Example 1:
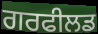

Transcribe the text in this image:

ਗਰਫੀਲਡ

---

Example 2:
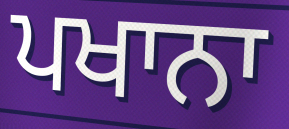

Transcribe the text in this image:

ਪਖਾਨਾ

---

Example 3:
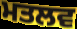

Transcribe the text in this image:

ਮਤਲਵ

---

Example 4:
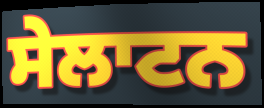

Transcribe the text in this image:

ਸੇਲਾਟਨ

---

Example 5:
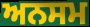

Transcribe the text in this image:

ਅਨਸਮ